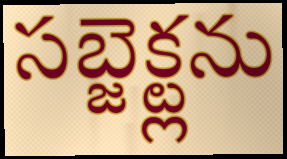
సబ్జెక్ట్లను